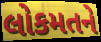
લોકમતને